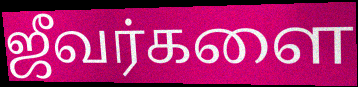
ஜீவர்களை